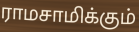
ராமசாமிக்கும்